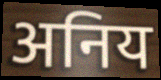
अनिय